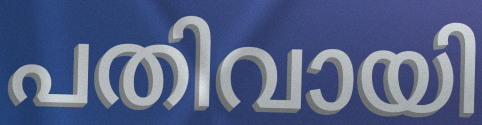
പതിവായി